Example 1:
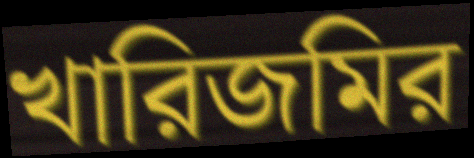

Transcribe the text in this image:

খারিজমির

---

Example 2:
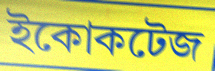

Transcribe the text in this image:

ইকোকটেজ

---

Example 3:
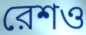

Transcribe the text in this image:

রেশও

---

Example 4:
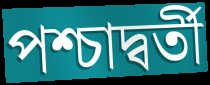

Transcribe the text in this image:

পশ্চাদ্বর্তী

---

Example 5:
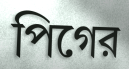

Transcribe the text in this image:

পিগের